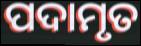
ପଦାମୃତ